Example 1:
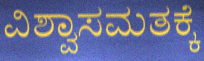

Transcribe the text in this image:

ವಿಶ್ವಾಸಮತಕ್ಕೆ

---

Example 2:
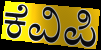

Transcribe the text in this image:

ಕೆವಿಪಿ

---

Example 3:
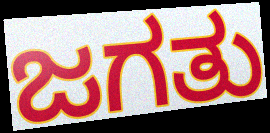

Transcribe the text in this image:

ಜಗತು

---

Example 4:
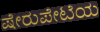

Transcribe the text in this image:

ಷೇರುಪೇಟೆಯ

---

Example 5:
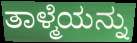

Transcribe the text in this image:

ತಾಳ್ಮೆಯನ್ನು